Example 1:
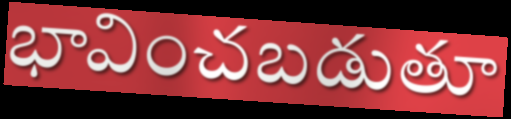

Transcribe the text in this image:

భావించబడుతూ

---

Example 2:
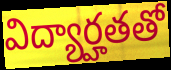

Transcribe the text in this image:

విద్యార్హతతో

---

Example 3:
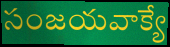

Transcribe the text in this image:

సంజయవాక్యే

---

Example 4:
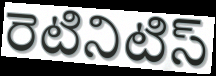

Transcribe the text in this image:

రెటినిటిస్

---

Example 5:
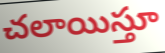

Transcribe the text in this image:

చలాయిస్తూ